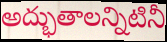
అద్భుతాలన్నిటినీ